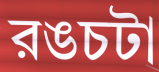
রঙচটা